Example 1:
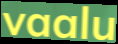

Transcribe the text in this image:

vaalu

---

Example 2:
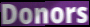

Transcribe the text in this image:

Donors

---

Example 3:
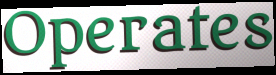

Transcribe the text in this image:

Operates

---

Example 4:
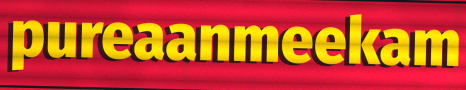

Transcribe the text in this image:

pureaanmeekam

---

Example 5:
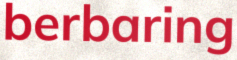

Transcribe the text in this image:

berbaring